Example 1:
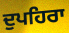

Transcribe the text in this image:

ਦੁਪਹਿਰਾ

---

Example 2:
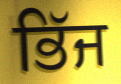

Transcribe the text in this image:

ਭਿੱਜ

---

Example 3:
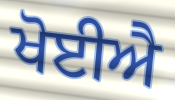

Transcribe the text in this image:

ਖੋਈਐ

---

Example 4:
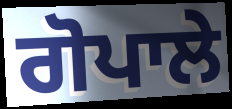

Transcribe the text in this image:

ਗੋਪਾਲੇ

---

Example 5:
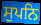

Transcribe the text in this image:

ਸੁਪਨਿ